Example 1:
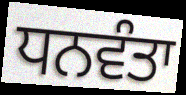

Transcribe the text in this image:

ਧਨਵੰਤਾ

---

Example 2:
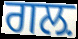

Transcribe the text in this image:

ਗਲ਼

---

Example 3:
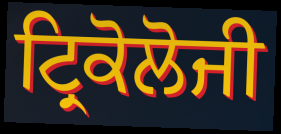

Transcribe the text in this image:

ਟ੍ਰਿਕੋਲੋਜੀ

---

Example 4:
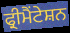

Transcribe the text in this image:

ਫ੍ਰੀਮੈਂਟੇਸ਼ਨ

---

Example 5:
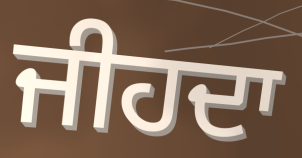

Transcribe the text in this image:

ਜੀਹਦਾ